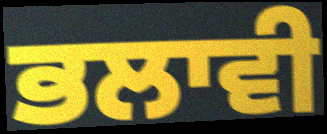
ਭਲਾਵੀ